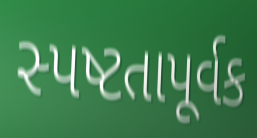
સ્પષ્ટતાપૂર્વક